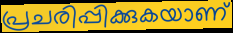
പ്രചരിപ്പിക്കുകയാണ്